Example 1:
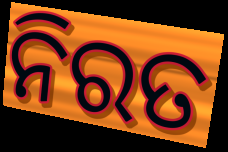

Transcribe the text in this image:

ନିରତ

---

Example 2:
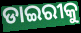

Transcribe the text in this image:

ଡାଇରୀକୁ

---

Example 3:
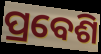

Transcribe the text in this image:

ପ୍ରବେଶି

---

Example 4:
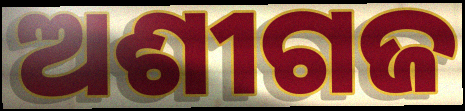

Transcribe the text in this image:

ଅଶୀଗଜ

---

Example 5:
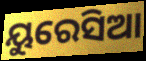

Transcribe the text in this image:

ୟୁରେସିଆ